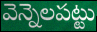
వెన్నెలపట్టు